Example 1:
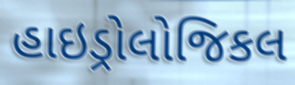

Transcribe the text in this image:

હાઇડ્રોલોજિકલ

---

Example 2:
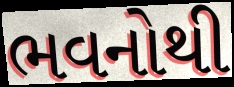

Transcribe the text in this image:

ભવનોથી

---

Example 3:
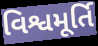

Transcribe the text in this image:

વિશ્વમૂર્તિ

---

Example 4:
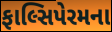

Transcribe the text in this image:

ફાલ્સિપેરમના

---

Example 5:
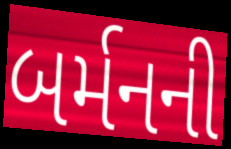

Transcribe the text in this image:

બર્મનની